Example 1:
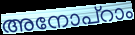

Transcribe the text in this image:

അനോപ്റാം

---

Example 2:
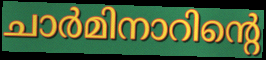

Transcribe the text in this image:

ചാർമിനാറിന്റെ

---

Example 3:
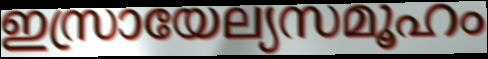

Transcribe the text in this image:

ഇസ്രായേല്യസമൂഹം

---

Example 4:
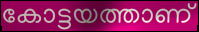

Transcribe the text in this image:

കോട്ടയത്താണ്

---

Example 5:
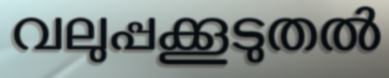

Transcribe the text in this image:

വലുപ്പക്കൂടുതൽ